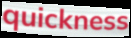
quickness